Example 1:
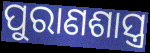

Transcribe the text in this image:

ପୁରାଣଶାସ୍ତ୍ର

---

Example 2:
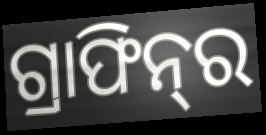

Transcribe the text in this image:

ଗ୍ରାଫିନ୍‌ର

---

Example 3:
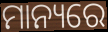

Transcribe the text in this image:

ମାନ୍ୟରେ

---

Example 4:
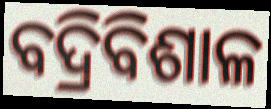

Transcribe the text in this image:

ବଦ୍ରିବିଶାଳ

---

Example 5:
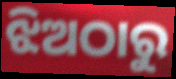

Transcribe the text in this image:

ଝିଅଠାରୁ